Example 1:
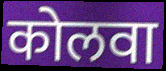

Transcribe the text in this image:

कोलवा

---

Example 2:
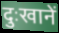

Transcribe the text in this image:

दुःखानें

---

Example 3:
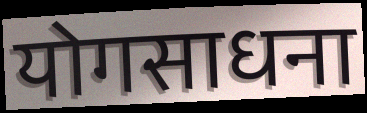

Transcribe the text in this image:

योगसाधना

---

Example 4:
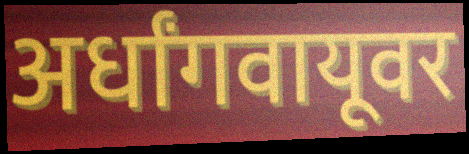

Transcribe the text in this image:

अर्धांगवायूवर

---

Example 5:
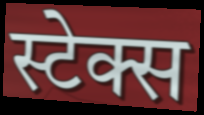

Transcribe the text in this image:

स्टेक्स